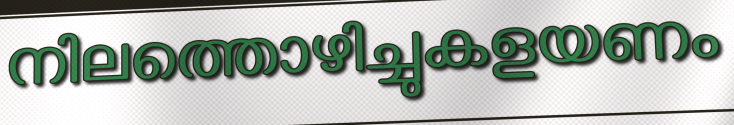
നിലത്തൊഴിച്ചുകളയണം